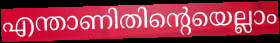
എന്താണിതിന്റെയെല്ലാം